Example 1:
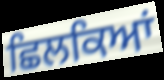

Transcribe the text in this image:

ਛਿਲਕਿਆਂ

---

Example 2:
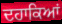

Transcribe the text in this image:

ਦਹਾਕਿਆਂ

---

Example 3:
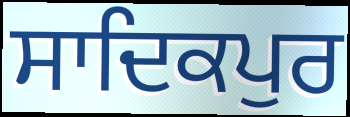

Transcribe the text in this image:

ਸਾਦਿਕਪੁਰ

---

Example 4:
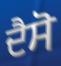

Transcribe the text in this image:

ਦੈਸੋ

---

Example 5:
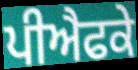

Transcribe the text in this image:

ਪੀਐਫਕੇ